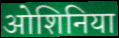
ओशिनिया